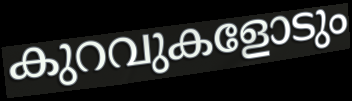
കുറവുകളോടും